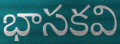
భాసకవి